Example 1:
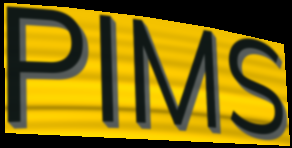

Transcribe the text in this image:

PIMS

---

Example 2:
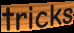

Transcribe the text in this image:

tricks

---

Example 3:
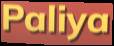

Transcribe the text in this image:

Paliya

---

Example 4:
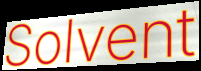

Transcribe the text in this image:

Solvent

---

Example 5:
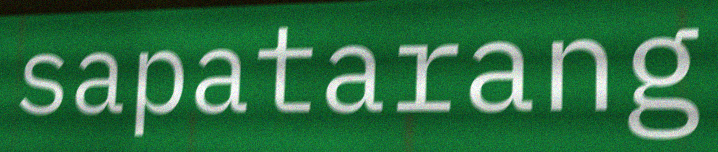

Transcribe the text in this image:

sapatarang